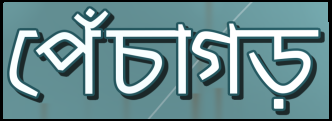
পেঁচাগড়